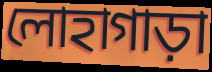
লোহাগাড়া